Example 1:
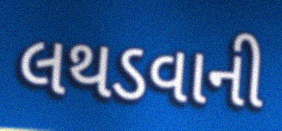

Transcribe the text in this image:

લથડવાની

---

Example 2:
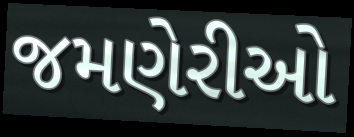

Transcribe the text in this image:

જમણેરીઓ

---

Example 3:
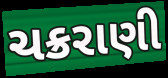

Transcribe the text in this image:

ચક્રરાણી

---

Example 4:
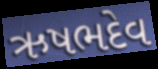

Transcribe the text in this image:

ઋષભદેવ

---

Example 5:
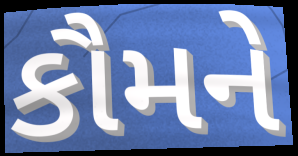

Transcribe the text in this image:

કૌમને